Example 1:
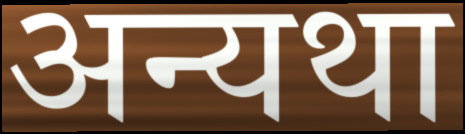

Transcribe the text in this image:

अन्यथा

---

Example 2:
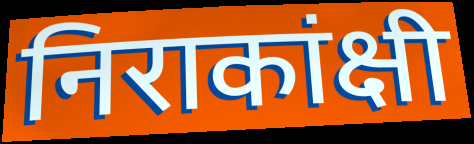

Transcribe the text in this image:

निराकांक्षी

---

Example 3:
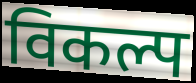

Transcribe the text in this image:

विकल्प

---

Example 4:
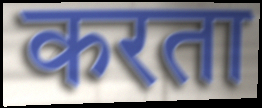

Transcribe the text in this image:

करता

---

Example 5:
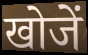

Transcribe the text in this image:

खोजें